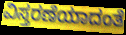
ವಿಸ್ತರಣೆಯಾದಂತೆ